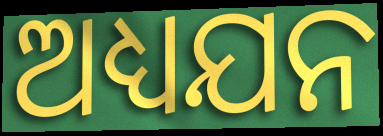
ଅଧ୍ୟଯନ